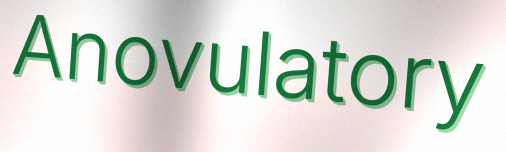
Anovulatory